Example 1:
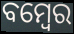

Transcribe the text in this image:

ବମ୍ବେର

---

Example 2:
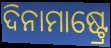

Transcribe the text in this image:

ଦିନାମାଷ୍ଟ୍ରେ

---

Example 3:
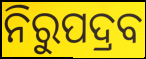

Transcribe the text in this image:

ନିରୁପଦ୍ରବ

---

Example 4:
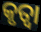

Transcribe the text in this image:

କୃତ୍ଵା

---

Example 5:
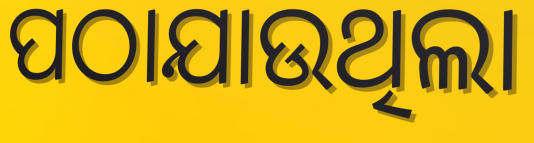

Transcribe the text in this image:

ପଠାଯାଉଥିଲା